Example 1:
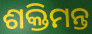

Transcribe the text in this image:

ଶକ୍ତିମନ୍ତ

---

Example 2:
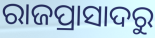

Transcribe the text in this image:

ରାଜପ୍ରାସାଦରୁ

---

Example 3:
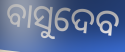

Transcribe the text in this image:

ବାସୁଦେବ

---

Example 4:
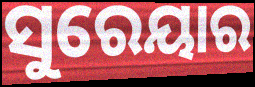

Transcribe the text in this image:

ସୁରେୟାର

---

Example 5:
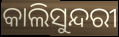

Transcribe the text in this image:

କାଲିସୁନ୍ଦରୀ